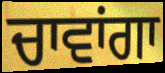
ਚਾਵਾਂਗਾ